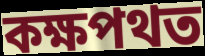
কক্ষপথত